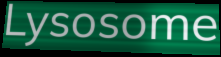
Lysosome